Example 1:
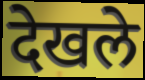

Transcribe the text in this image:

देखले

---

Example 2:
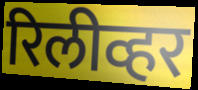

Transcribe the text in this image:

रिलीव्हर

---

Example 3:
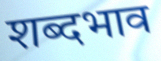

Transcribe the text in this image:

शब्दभाव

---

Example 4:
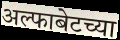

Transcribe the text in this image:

अल्फाबेटच्या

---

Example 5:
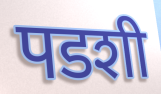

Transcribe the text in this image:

पडशी